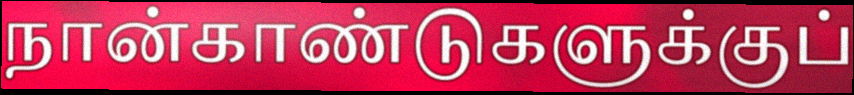
நான்காண்டுகளுக்குப்